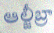
ఆల్జీబ్రా